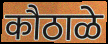
कौठाळे